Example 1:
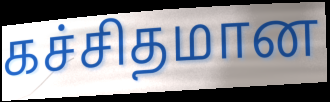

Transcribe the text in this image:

கச்சிதமான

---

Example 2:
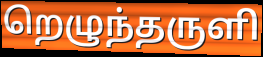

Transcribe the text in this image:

றெழுந்தருளி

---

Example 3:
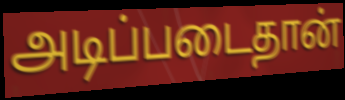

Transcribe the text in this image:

அடிப்படைதான்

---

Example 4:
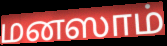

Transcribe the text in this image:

மனஸாம்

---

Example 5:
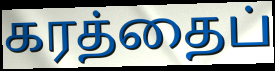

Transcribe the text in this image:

கரத்தைப்